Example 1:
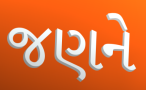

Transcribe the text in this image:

જણને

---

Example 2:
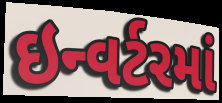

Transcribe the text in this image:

ઇન્વર્ટરમાં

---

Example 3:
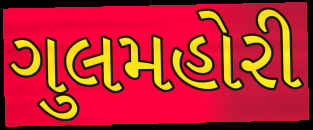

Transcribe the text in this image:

ગુલમહોરી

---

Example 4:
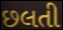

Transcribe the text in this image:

છલતી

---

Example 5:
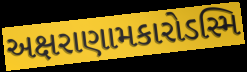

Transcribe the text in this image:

અક્ષરાણામકારોઽસ્મિ